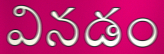
వినడం